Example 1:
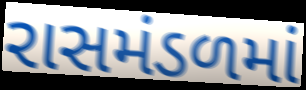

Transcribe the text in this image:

રાસમંડળમાં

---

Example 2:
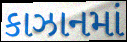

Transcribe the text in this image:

કાઝાનમાં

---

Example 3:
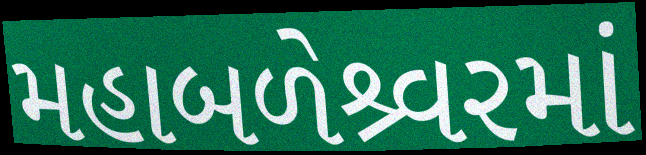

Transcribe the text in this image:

મહાબળેશ્ર્વરમાં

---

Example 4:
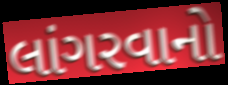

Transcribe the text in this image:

લાંગરવાનો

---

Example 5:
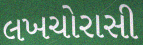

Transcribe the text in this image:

લખચોરાસી